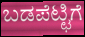
ಬಡಪೆಟ್ಟಿಗೆ